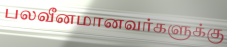
பலவீனமானவர்களுக்கு